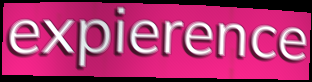
expierence